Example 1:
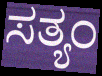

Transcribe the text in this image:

ಸತ್ಯಂ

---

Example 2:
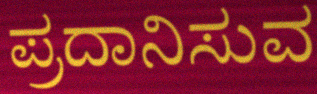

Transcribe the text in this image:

ಪ್ರದಾನಿಸುವ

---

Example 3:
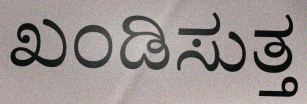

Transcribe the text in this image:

ಖಂಡಿಸುತ್ತ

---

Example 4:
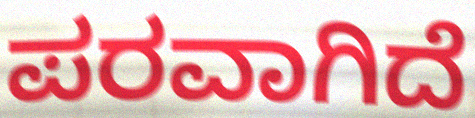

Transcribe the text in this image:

ಪರವಾಗಿದೆ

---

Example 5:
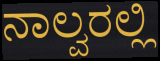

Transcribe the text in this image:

ನಾಲ್ವರಲ್ಲಿ